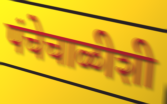
पंचेचाळीशी